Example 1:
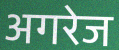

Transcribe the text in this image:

अगरेज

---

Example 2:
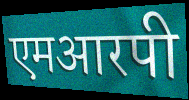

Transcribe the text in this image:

एमआरपी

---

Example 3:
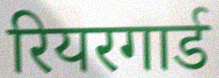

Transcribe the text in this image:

रियरगार्ड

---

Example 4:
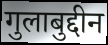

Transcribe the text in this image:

गुलाबुद्दीन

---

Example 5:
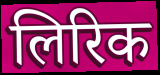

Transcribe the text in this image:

लिरिक